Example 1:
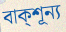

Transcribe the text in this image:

বাক্শূন্য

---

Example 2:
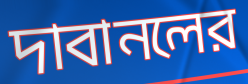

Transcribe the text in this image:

দাবানলের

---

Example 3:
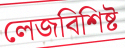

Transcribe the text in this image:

লেজবিশিষ্ট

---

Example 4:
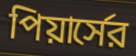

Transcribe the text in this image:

পিয়ার্সের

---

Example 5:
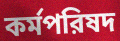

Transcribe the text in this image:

কর্মপরিষদ